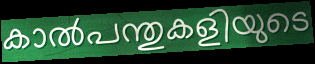
കാൽപന്തുകളിയുടെ